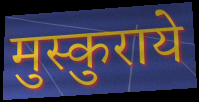
मुस्कुराये